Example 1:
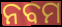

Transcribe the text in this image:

ନବମ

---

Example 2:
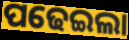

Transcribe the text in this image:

ପଢେଇଲା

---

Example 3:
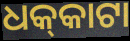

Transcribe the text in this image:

ଧକ୍‌କାଟା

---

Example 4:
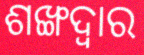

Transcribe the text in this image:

ଶଙ୍ଖଦ୍ୱାର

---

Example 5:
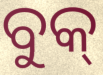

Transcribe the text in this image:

ବୁକ୍